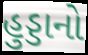
હુડ્ડાનો